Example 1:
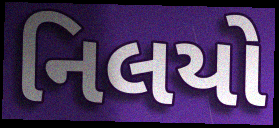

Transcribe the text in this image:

નિલયો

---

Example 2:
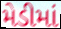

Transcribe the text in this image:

મેડીમાં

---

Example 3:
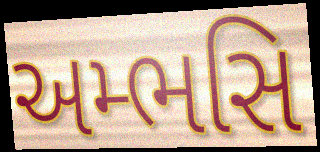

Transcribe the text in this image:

અમ્ભસિ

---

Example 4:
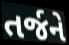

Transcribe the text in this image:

તર્જને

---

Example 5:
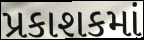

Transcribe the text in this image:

પ્રકાશકમાં